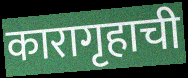
कारागृहाची